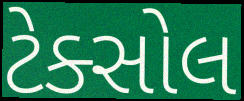
ટેક્સોલ